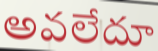
అవలేదూ